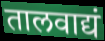
तालवाद्यं